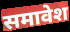
समावेश